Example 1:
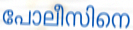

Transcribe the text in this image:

പോലീസിനെ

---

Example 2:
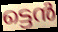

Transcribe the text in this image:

ട്ടെൻ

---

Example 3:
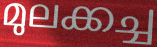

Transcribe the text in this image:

മുലക്കച്ച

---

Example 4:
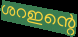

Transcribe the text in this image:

ശറഇന്റെ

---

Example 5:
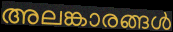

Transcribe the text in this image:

അലങ്കാരങ്ങൾ